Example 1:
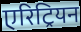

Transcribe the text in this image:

एरिट्रियन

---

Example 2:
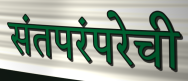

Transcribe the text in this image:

संतपरंपरेची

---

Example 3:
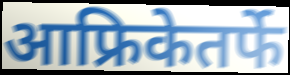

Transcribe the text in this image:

आफ्रिकेतर्फे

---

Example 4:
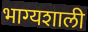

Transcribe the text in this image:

भाग्यशाली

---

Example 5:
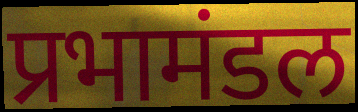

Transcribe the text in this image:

प्रभामंडल